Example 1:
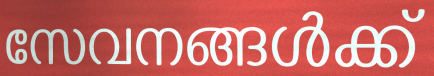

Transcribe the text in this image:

സേവനങ്ങൾക്ക്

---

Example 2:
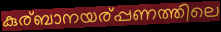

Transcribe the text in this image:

കുര്ബാനയര്പ്പണത്തിലെ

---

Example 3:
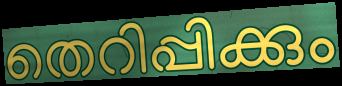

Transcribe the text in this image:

തെറിപ്പിക്കും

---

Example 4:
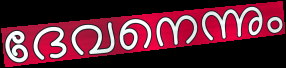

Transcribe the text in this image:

ദേവനെന്നും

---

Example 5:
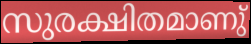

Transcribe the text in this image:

സുരക്ഷിതമാണു്